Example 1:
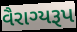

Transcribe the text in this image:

વૈરાગ્યરૂપ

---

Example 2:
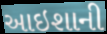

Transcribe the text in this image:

આઇશાની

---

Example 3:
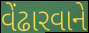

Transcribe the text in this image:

વેંઢારવાને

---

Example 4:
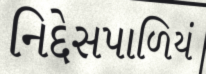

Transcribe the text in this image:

નિદ્દેસપાળિયં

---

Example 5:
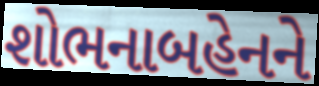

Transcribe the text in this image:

શોભનાબહેનને